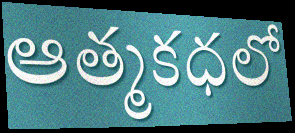
ఆత్మకధలో